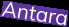
Antara